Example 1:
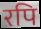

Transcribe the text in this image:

रपि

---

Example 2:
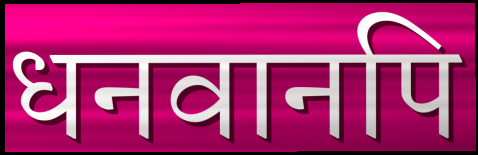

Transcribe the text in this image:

धनवानपि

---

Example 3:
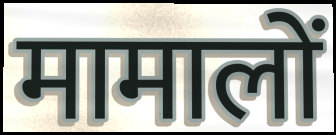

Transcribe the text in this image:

मामालों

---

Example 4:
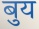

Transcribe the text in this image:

बुय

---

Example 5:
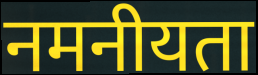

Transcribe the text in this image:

नमनीयता